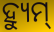
ହ୍ୟୁମ୍